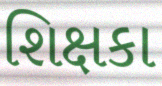
શિક્ષકા